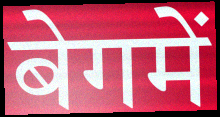
बेगमें